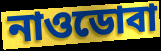
নাওডোবা